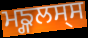
ਮਙ੍ਗਲਸ੍ਸ